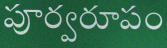
పూర్వరూపం